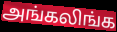
அங்கலிங்க